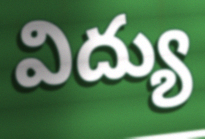
విద్యు